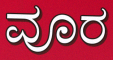
ವೂರ